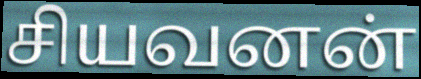
சியவனன்